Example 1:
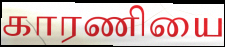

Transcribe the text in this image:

காரணியை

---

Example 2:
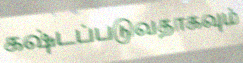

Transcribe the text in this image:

கஷ்டப்படுவதாகவும்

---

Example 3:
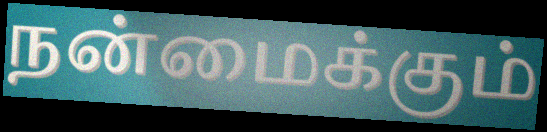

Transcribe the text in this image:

நன்மைக்கும்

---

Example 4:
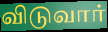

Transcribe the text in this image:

விடுவார்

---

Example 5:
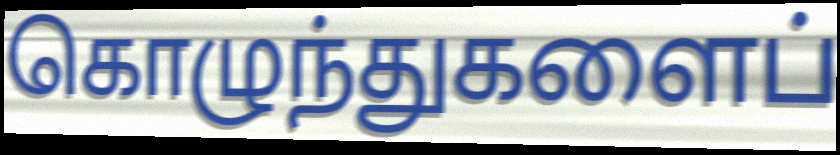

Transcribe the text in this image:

கொழுந்துகளைப்